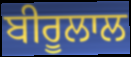
ਬੀਰੂਲਾਲ